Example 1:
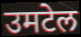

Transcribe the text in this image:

उमटेल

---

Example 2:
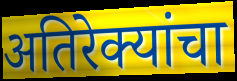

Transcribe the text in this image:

अतिरेक्यांचा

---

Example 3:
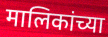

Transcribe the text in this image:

मालिकांच्या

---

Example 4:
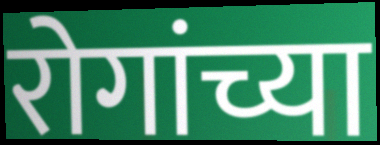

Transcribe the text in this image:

रोगांच्या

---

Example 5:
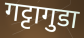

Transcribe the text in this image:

गट्टागुडा